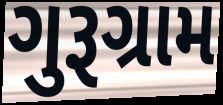
ગુરૂગ્રામ